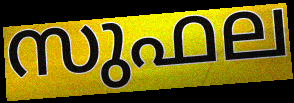
സുഫല